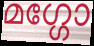
മഗ്ഗോ